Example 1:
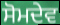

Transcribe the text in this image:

ਸੋਮਦੇਵ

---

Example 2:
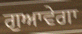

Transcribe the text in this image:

ਗੁਆਵੇਗਾ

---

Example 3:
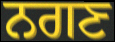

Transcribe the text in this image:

ਨਗਣ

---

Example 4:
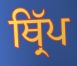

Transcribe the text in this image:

ਥ੍ਰਿੱਪ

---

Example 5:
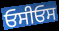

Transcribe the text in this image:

ਓਸੀਓਸ